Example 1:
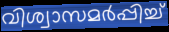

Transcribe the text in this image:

വിശ്വാസമർപ്പിച്ച്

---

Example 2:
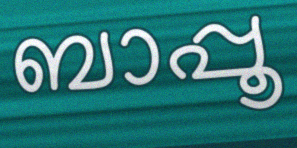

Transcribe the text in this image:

ബാപ്പൂ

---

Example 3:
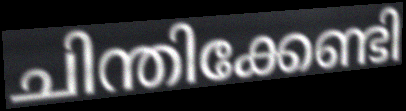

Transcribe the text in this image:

ചിന്തിക്കേണ്ടി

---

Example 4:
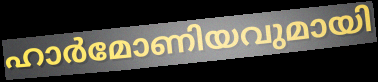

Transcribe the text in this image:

ഹാർമോണിയവുമായി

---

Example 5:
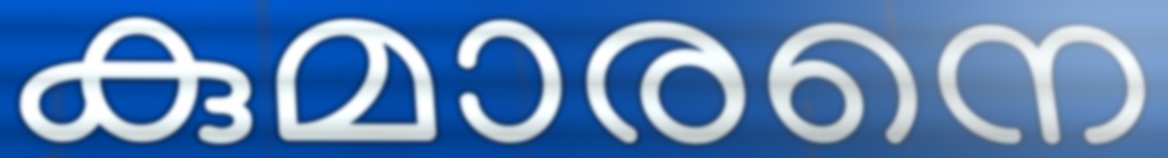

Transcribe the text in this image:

കുമാരനെ